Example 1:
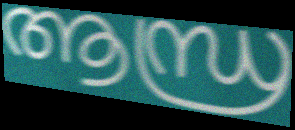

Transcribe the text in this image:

ആന്ധ്ര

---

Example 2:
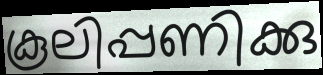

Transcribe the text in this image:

കൂലിപ്പണിക്കു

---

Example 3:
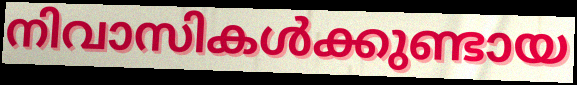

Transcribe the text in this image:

നിവാസികൾക്കുണ്ടായ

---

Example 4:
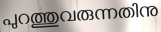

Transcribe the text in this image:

പുറത്തുവരുന്നതിനു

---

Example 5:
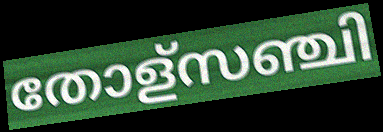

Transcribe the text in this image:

തോള്സഞ്ചി